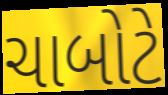
ચાબોટે